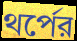
থর্পের